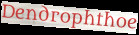
Dendrophthoe